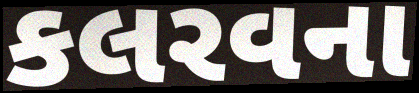
કલરવના